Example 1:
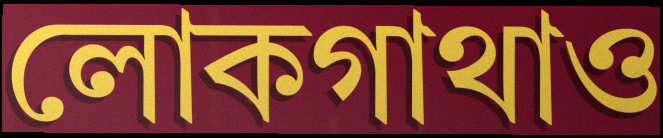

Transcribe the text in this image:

লোকগাথাও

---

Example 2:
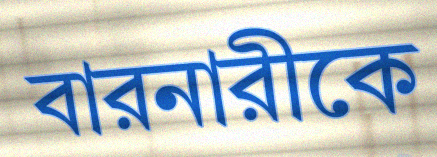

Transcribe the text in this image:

বারনারীকে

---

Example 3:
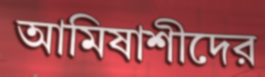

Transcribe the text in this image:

আমিষাশীদের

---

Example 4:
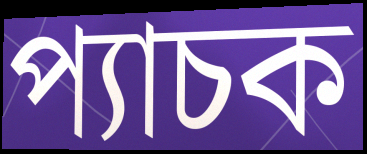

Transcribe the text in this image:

প্যাচক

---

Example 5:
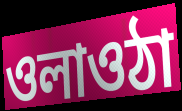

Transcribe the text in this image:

ওলাওঠা